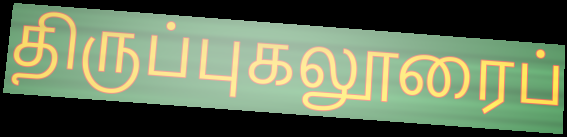
திருப்புகலூரைப்